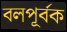
বলপূৰ্বক